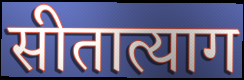
सीतात्याग